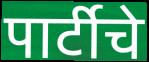
पार्टीचे